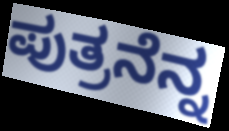
ಪುತ್ರನೆನ್ನ